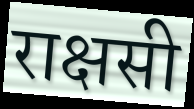
राक्षसी